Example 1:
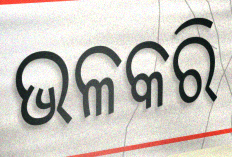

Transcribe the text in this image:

ଭଳକରି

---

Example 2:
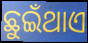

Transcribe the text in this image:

ଛୁଇଁଥାଏ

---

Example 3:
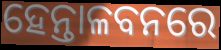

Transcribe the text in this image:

ହେନ୍ତାଳବନରେ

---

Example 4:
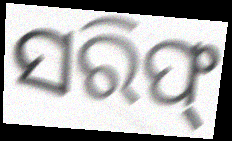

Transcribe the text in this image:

ସରିଫ୍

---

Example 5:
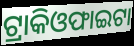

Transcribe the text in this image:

ଟ୍ରାକିଓଫାଇଟା